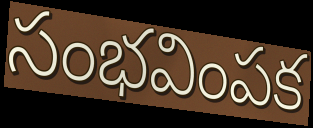
సంభవింపక